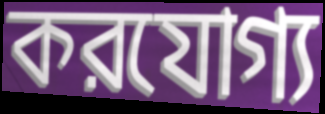
করযোগ্য